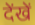
देंखें